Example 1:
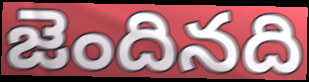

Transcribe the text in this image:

జెందినది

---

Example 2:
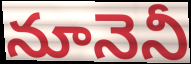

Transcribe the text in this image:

నూనెనీ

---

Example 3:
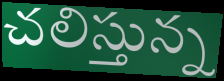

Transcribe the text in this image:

చలిస్తున్న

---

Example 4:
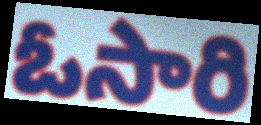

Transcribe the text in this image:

ఓసారి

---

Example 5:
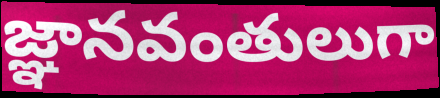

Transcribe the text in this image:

జ్ఞానవంతులుగా